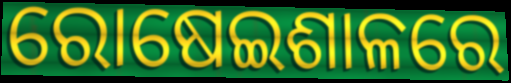
ରୋଷେଇଶାଳରେ